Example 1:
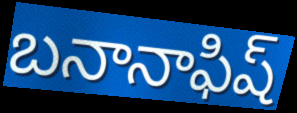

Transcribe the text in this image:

బనానాఫిష్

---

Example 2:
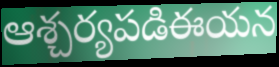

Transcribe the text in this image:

ఆశ్చర్యపడిఈయన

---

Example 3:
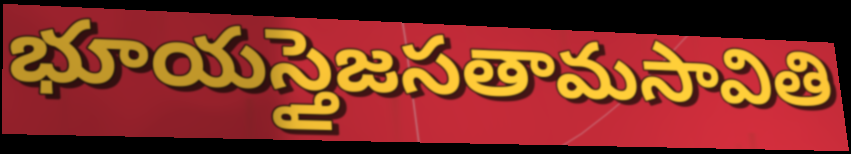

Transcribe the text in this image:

భూయస్తైజసతామసావితి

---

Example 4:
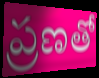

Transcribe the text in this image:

ప్రణతో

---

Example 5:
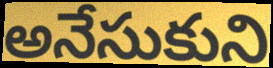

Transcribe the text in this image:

అనేసుకుని